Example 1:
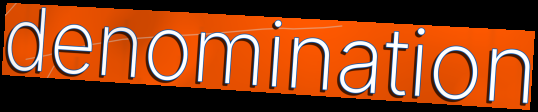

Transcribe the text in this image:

denomination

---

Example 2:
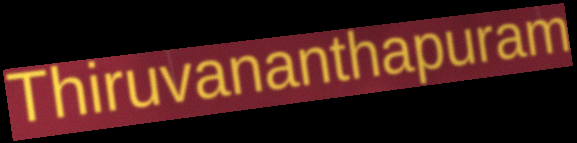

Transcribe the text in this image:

Thiruvananthapuram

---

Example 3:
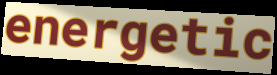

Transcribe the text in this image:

energetic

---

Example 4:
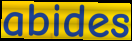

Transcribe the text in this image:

abides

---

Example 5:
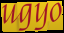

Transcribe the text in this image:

ugyo